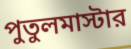
পুতুলমাস্টার